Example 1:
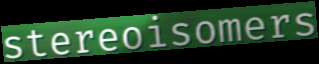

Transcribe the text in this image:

stereoisomers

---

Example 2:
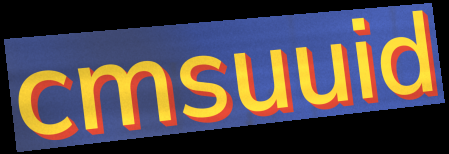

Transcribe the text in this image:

cmsuuid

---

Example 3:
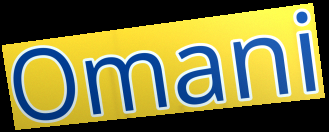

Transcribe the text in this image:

Omani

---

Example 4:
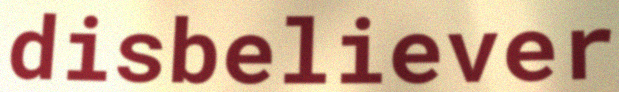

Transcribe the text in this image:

disbeliever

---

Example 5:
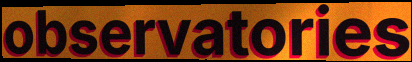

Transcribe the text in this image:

observatories